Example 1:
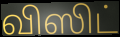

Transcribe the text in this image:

விஸிட்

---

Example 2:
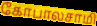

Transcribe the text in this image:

கோபாலசாமி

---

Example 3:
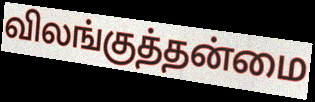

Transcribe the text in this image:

விலங்குத்தன்மை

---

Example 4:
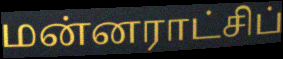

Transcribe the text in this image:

மன்னராட்சிப்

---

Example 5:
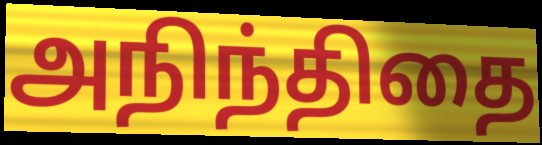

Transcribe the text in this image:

அநிந்திதை